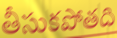
తీసుకపోతది